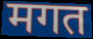
मगत